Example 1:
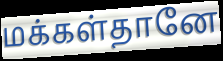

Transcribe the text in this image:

மக்கள்தானே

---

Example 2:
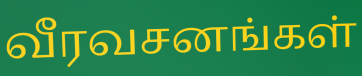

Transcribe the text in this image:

வீரவசனங்கள்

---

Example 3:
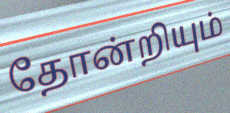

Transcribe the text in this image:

தோன்றியும்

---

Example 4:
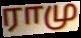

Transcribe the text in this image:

ராமு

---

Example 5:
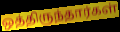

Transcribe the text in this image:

ஒத்திருந்தார்கள்